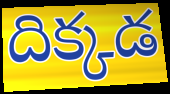
దిక్కడ